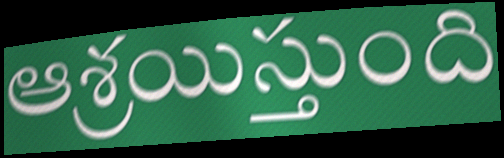
ఆశ్రయిస్తుంది